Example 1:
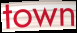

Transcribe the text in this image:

town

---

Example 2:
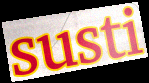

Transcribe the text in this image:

susti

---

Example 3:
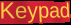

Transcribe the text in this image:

Keypad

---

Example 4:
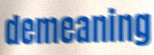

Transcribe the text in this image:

demeaning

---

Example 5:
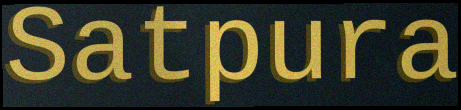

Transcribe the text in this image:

Satpura